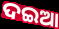
ଦଇଆ